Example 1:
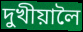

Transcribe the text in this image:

দুখীয়ালৈ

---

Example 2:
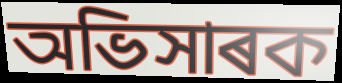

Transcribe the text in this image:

অভিসাৰক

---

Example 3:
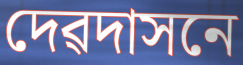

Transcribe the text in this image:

দেৱদাসনে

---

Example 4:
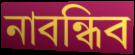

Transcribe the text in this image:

নাবন্ধিব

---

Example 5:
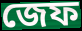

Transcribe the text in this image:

জেফ